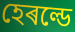
হেৰল্ডে